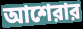
আশেরার